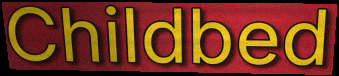
Childbed